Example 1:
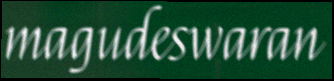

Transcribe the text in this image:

magudeswaran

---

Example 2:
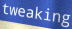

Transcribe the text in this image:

tweaking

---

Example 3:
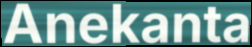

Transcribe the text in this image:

Anekanta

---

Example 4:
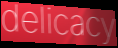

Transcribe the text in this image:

delicacy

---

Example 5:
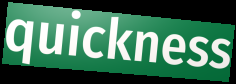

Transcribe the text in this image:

quickness